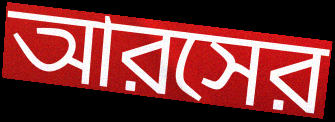
আরসের